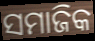
ସମାଜିକ